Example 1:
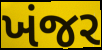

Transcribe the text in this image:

ખંજર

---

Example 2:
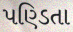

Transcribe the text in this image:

પણ્ડિતા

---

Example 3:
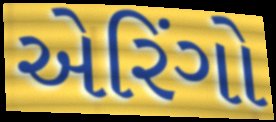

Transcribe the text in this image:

એરિંગો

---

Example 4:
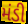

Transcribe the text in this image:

મંડી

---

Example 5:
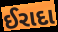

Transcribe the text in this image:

ઈરાદા